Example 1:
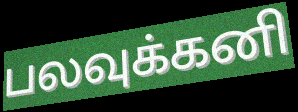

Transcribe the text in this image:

பலவுக்கனி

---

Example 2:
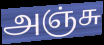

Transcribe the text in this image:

அஞ்சு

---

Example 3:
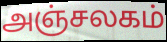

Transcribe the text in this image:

அஞ்சலகம்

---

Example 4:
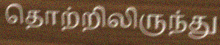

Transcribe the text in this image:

தொற்றிலிருந்து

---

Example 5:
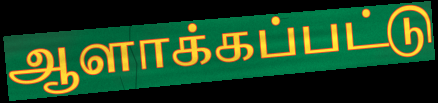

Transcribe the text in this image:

ஆளாக்கப்பட்டு